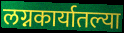
लग्नकार्यातल्या